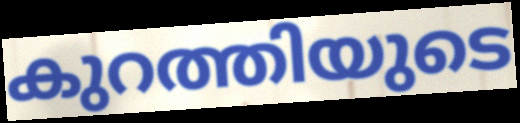
കുറത്തിയുടെ